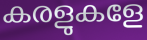
കരളുകളേ